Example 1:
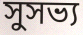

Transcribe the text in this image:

সুসভ্য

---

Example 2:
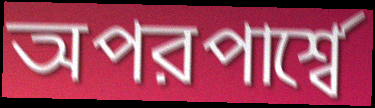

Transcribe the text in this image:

অপরপার্শ্বে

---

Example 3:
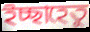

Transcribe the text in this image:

ইচ্ছাহেতু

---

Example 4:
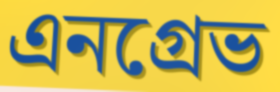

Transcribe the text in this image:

এনগ্রেভ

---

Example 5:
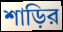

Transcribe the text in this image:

শাড়ির